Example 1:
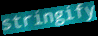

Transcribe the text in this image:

stringify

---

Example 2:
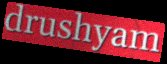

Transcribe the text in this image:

drushyam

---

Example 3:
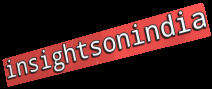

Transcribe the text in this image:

insightsonindia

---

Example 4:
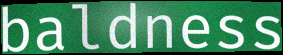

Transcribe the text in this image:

baldness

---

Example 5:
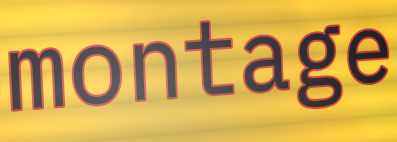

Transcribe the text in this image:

montage